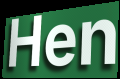
Hen